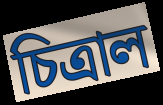
চিত্রাল